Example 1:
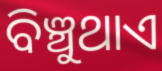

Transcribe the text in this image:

ବିଞ୍ଚୁଥାଏ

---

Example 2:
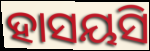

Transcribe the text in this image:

ହାସୟସି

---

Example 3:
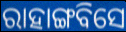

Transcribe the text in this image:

ରାହାଙ୍ଗବିସେ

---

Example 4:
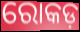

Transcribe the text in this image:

ରୋକଡ଼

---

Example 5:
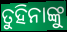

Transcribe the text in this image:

ତୁହିନାଙ୍କୁ